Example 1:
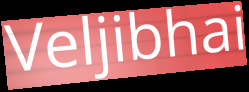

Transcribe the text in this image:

Veljibhai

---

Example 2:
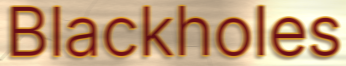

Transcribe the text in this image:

Blackholes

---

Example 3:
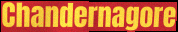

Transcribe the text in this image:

Chandernagore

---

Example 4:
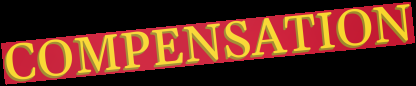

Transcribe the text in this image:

COMPENSATION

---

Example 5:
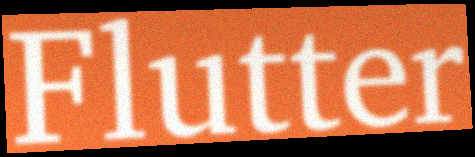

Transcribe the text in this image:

Flutter